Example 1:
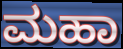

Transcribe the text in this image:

ಮಹಾ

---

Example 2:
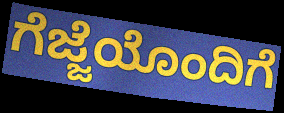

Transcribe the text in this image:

ಗೆಜ್ಜೆಯೊಂದಿಗೆ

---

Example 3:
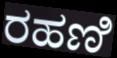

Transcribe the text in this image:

ರಹಣಿ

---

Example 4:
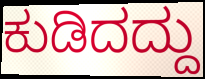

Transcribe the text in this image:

ಕುಡಿದದ್ದು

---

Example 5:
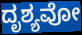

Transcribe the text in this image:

ದೃಶ್ಯವೋ